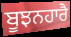
ਬੂਝਨਹਾਰੈ